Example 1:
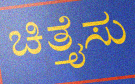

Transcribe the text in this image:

ಚಿತ್ತೈಸು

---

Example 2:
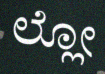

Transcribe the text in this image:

ಲ್ಲೋ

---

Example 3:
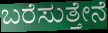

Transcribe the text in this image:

ಬರೆಸುತ್ತೇನೆ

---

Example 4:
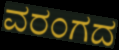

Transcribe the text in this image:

ವರಂಗದ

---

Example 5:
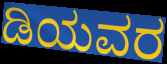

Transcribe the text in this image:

ಡಿಯವರ